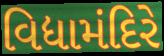
વિદ્યામંદિરે